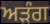
ਅੜੰਗ